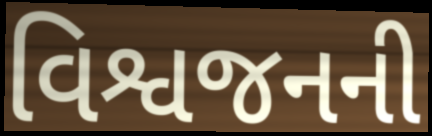
વિશ્વજનની